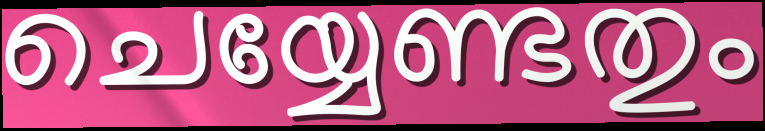
ചെയ്യേണ്ടതും